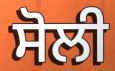
ਸੋਲੀ